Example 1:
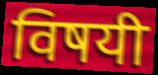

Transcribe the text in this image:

विषयी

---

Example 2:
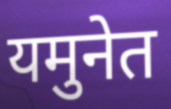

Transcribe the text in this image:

यमुनेत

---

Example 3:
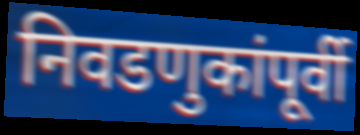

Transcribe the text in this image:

निवडणुकांपूर्वी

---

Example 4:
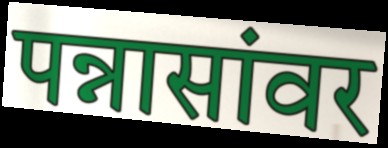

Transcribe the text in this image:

पन्नासांवर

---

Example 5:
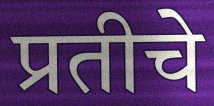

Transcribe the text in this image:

प्रतीचे